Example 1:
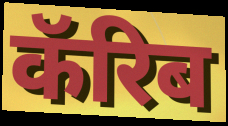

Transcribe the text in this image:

कॅरिब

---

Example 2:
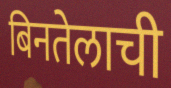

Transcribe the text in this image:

बिनतेलाची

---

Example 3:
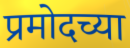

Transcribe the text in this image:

प्रमोदच्या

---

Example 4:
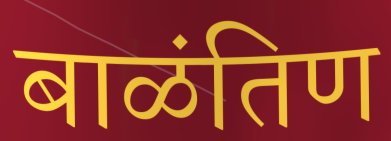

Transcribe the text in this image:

बाळंतिण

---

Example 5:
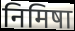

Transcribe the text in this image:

निमिषा